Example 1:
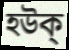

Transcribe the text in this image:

হউক্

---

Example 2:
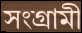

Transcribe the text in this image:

সংগ্রামী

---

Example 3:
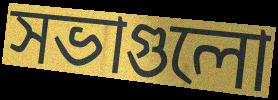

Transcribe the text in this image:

সভাগুলো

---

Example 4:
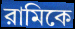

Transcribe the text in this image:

রামিকে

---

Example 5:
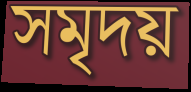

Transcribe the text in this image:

সমৃদয়